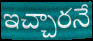
ఇచ్చారనే